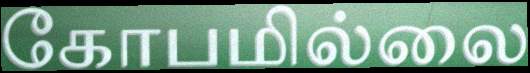
கோபமில்லை